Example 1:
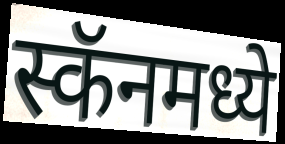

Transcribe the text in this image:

स्कॅनमध्ये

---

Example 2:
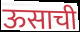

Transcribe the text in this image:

ऊसाची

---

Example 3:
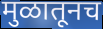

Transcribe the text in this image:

मुळातूनच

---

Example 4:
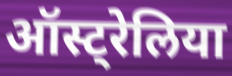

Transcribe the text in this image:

ऑस्ट्रेलिया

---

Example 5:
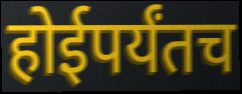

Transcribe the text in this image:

होईपर्यंतच